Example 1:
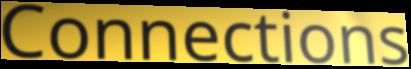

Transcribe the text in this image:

Connections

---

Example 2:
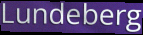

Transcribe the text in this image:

Lundeberg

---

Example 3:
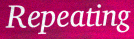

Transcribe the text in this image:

Repeating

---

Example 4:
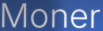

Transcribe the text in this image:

Moner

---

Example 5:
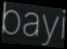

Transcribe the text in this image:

bayi